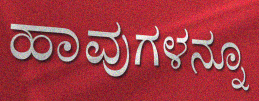
ಹಾವುಗಳನ್ನೂ